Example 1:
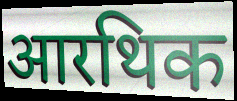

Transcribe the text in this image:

आरथिक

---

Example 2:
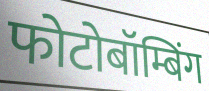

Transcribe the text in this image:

फोटोबॉम्बिंग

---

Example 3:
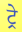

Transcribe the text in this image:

ट्रे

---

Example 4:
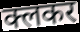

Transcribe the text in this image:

क्लकर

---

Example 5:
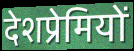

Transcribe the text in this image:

देशप्रेमियों